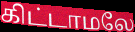
கிட்டாமலே